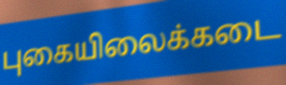
புகையிலைக்கடை